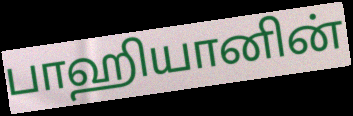
பாஹியானின்